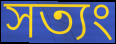
সত্যং